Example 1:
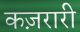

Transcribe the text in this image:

कज़रारी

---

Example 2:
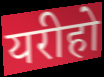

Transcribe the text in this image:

यरीहो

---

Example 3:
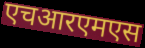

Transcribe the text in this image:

एचआरएमएस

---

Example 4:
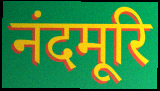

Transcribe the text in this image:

नंदमूरि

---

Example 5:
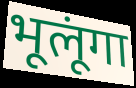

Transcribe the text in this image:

भूलूंगा